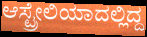
ಆಸ್ಟ್ರೇಲಿಯಾದಲ್ಲಿದ್ದ